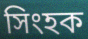
সিংহক